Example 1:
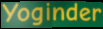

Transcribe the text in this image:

Yoginder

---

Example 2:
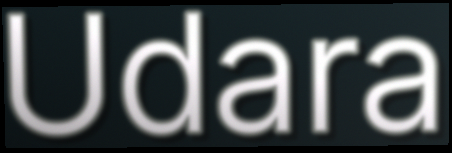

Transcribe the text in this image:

Udara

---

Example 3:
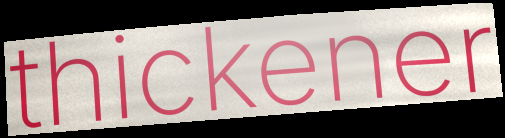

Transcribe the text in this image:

thickener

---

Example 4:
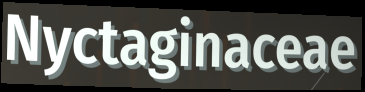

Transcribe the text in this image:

Nyctaginaceae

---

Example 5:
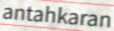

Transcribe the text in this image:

antahkaran